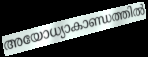
അയോധ്യാകാണ്ഡത്തിൽ